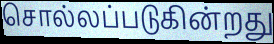
சொல்லப்படுகின்றது